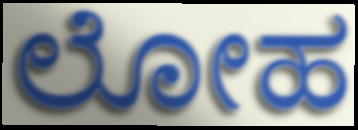
ಲೋಹ